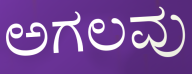
ಅಗಲವು